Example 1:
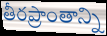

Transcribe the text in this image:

తీరప్రాంతాన్ని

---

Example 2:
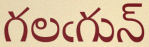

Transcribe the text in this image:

గలఁగున్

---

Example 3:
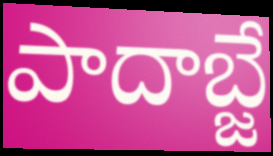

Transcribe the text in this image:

పాదాబ్జే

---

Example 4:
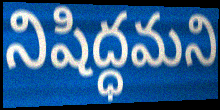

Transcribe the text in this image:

నిషిద్ధమని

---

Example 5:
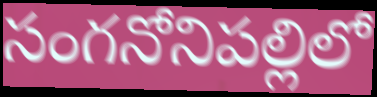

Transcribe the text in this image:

సంగనోనిపల్లిలో